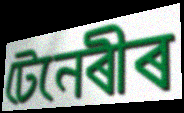
টেনেৰীৰ